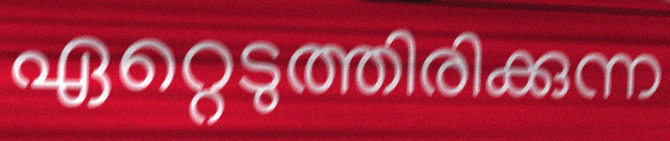
ഏറ്റെടുത്തിരിക്കുന്ന